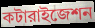
কটারাইজেশন